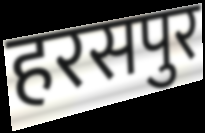
हरसपुर